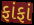
ફાંફાં